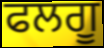
ਫਲਗੂ